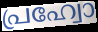
പ്രഹ്വോ